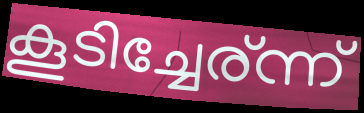
കൂടിച്ചേര്ന്ന്